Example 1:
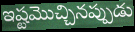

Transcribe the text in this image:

ఇష్టమొచ్చినప్పుడు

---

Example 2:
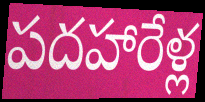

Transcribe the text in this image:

పదహారేళ్ల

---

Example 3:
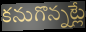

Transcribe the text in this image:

కనుగొన్నట్లే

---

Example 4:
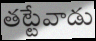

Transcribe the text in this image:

తట్టేవాడు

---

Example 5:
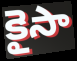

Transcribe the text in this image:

కైసా